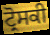
ਟ੍ਰੋਸਕੀ